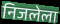
निजलेला